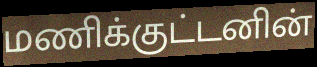
மணிக்குட்டனின்